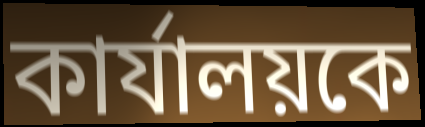
কার্যালয়কে